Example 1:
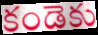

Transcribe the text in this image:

కండెకు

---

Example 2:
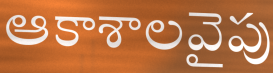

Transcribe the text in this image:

ఆకాశాలవైపు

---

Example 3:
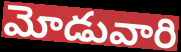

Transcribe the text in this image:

మోడువారి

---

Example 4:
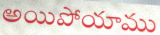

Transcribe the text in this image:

అయిపోయాము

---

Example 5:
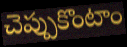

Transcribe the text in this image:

చెప్పుకొంటాం